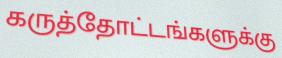
கருத்தோட்டங்களுக்கு